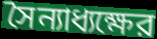
সৈন্যাধ্যক্ষের